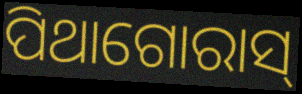
ପିଥାଗୋରାସ୍